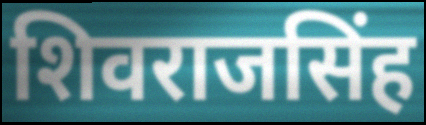
शिवराजसिंह